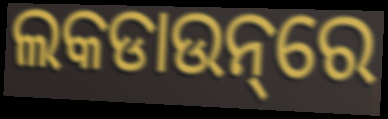
ଲକଡାଉନ୍‌ରେ